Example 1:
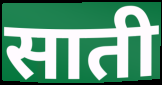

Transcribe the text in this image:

साती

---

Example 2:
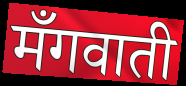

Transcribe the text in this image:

मँगवाती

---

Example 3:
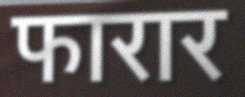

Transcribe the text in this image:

फारार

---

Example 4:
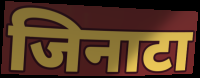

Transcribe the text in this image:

जिनाटा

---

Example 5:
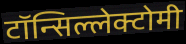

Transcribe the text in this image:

टॉन्सिल्लेक्टोमी